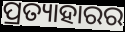
ପ୍ରତ୍ୟାହାରର